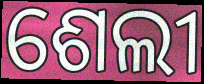
ଶେଲୀ